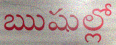
ఋషుల్లో